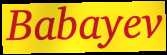
Babayev